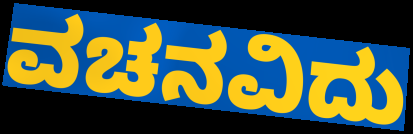
ವಚನವಿದು